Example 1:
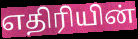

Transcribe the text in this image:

எதிரியின்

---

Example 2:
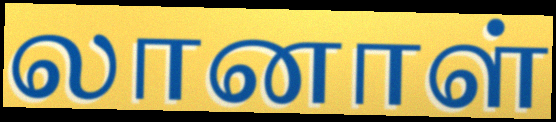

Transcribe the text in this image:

லானாள்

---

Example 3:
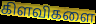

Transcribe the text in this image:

கிளவிகளை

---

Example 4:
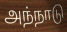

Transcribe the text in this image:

அந்நாடு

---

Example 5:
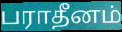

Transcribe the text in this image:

பராதீனம்